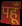
पहूँ